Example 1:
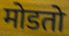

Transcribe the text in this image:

मोडतो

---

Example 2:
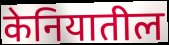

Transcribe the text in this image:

केनियातील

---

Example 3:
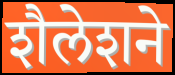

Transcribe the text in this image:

शैलेशने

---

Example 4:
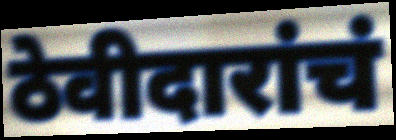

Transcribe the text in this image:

ठेवीदारांचं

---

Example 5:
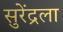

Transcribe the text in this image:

सुरेंद्रला